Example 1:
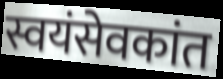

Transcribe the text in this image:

स्वयंसेवकांत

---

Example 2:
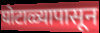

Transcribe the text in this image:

घोटाळ्यापासून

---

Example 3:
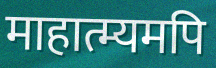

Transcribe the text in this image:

माहात्म्यमपि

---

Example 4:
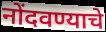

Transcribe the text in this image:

नोंदवण्याचे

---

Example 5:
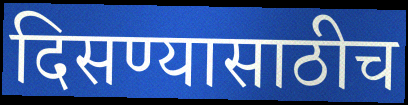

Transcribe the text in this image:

दिसण्यासाठीच